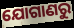
ଯୋଗାଣରୁ